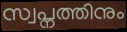
സ്വപ്നത്തിനും